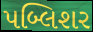
પબ્લિશર